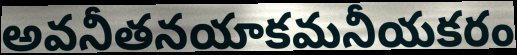
అవనీతనయాకమనీయకరం